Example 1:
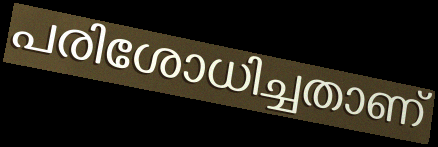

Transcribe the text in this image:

പരിശോധിച്ചതാണ്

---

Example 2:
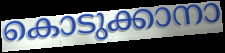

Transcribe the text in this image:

കൊടുക്കാനാ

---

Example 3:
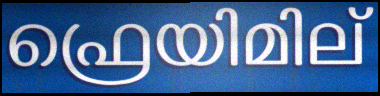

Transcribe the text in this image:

ഫ്രെയിമില്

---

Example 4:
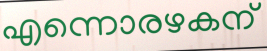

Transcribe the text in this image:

എന്നൊരഴകന്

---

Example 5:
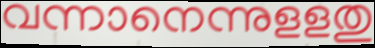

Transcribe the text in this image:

വന്നാനെന്നുളളതു